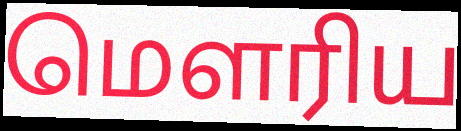
மௌரிய